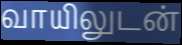
வாயிலுடன்